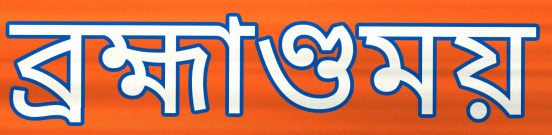
ব্রহ্মাণ্ডময়